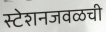
स्टेशनजवळची